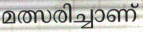
മത്സരിച്ചാണ്